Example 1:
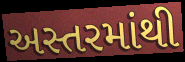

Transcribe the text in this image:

અસ્તરમાંથી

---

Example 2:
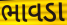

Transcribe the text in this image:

ભાવડા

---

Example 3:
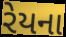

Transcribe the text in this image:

રેયના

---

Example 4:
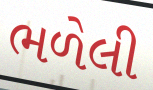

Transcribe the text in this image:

ભળેલી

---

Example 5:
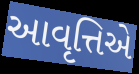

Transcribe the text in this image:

આવૃત્તિએ